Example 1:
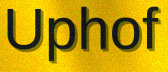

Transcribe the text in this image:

Uphof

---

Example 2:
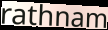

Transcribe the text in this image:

rathnam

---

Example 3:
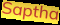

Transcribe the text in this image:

Saptha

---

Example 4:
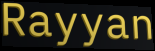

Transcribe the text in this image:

Rayyan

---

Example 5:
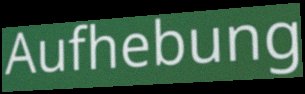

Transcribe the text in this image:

Aufhebung